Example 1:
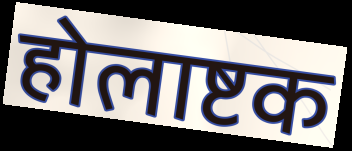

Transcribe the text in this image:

होलाष्टक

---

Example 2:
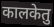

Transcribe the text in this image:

कालकेतु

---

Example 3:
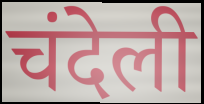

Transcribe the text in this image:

चंदेली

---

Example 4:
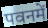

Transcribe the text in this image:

पवनमें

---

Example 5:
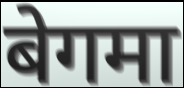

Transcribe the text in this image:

बेगमा